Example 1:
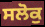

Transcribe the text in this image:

ਸਲੋਕੁ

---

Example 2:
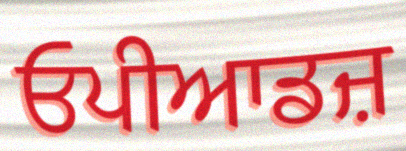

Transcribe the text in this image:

ਓਪੀਆਡਜ਼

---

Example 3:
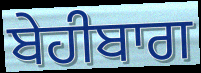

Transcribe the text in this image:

ਬੇਹੀਬਾਗ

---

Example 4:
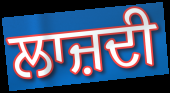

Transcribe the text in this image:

ਲਾਜ਼ਦੀ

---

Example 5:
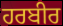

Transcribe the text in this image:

ਹਰਬੀਰ